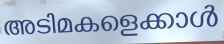
അടിമകളെക്കാൾ